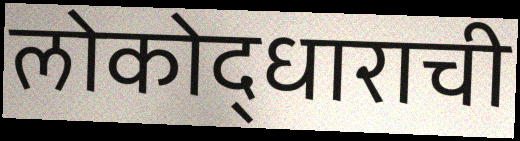
लोकोद्धाराची